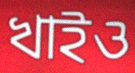
খাইও